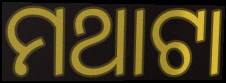
ମଥାଟା